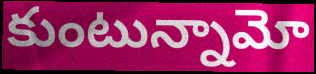
కుంటున్నామో